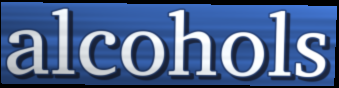
alcohols